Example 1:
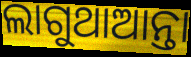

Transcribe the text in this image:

ଲାଗୁଥାଆନ୍ତା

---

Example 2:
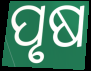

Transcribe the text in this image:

ପୃଷ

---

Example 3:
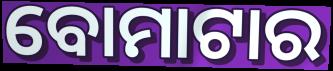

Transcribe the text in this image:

ବୋମାଟାର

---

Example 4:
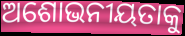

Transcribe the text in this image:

ଅଶୋଭନୀୟତାକୁ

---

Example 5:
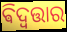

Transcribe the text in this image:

ଵିଦ୍ବତ୍ତାର